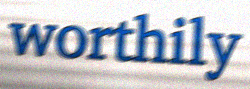
worthily